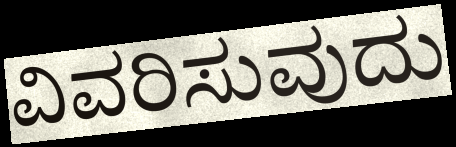
ವಿವರಿಸುವುದು